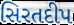
સિરતદીપ